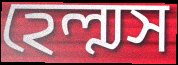
হেল্মস